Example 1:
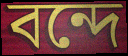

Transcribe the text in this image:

বন্দে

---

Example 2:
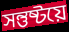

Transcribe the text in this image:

সন্তুষ্টয়ে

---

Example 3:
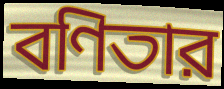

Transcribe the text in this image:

বণিতার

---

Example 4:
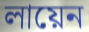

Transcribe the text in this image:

লায়েন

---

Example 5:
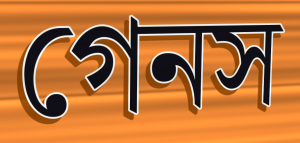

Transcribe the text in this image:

গেনস